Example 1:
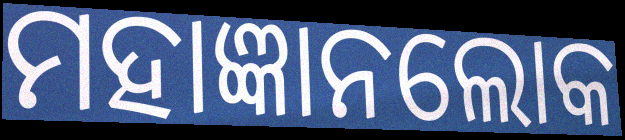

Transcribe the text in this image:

ମହାଜ୍ଞାନଲୋକ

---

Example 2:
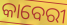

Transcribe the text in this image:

କାବେରୀ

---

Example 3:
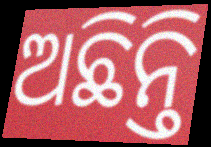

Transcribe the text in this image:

ଅଛିନ୍ତି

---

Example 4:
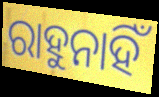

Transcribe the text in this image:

ରାହୁନାହିଁ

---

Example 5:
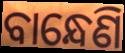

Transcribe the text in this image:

ବାନ୍ଧେଣି